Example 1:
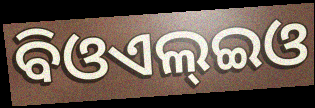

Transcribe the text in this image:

ବିଓଏଲ୍ଇଓ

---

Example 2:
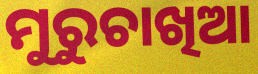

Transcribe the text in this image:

ମୁରୁଚାଖିଆ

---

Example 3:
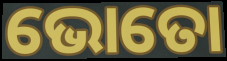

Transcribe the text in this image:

ଭୋତୋ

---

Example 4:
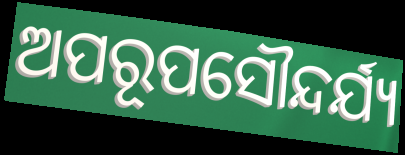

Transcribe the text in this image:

ଅପରୂପସୌନ୍ଦର୍ଯ୍ୟ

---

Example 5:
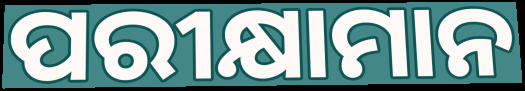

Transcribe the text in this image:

ପରୀକ୍ଷାମାନ